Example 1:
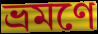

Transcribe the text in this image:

ভ্রমণে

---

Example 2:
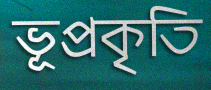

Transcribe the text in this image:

ভূপ্রকৃতি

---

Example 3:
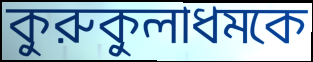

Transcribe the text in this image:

কুরুকুলাধমকে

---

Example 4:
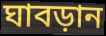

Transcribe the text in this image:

ঘাবড়ান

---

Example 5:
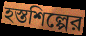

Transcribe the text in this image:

হস্তশিল্পের